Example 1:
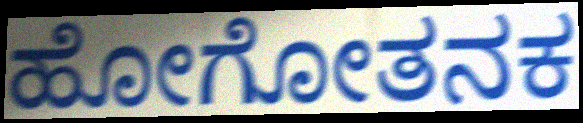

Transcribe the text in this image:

ಹೋಗೋತನಕ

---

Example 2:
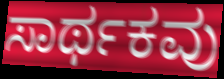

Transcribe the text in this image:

ಸಾರ್ಥಕವು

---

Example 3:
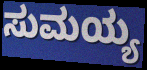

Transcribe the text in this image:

ಸುಮಯ್ಯ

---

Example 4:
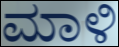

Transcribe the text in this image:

ಮಾಳಿ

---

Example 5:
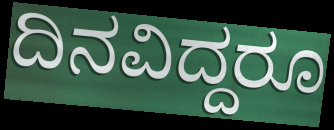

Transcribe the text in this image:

ದಿನವಿದ್ದರೂ